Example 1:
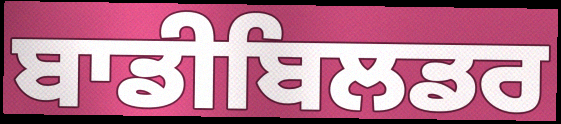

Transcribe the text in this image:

ਬਾਡੀਬਿਲਡਰ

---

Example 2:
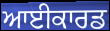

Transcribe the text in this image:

ਆਈਕਾਰਡ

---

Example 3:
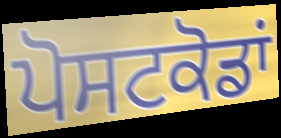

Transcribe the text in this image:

ਪੋਸਟਕੋਡਾਂ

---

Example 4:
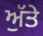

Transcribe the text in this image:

ਅੁੱਤੇ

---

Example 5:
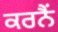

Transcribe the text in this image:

ਕਰਨੈਂ